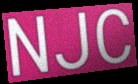
NJC